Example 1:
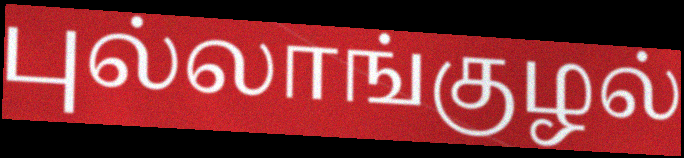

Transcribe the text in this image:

புல்லாங்குழல்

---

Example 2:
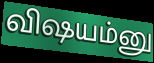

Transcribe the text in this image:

விஷயம்னு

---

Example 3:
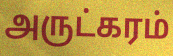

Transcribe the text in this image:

அருட்கரம்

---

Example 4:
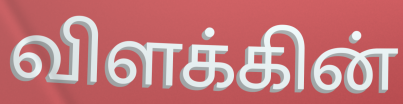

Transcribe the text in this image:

விளக்கின்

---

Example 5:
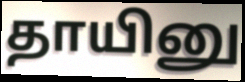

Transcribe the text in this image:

தாயினு